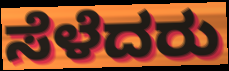
ಸೆಳೆದರು